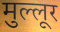
मुल्लूर